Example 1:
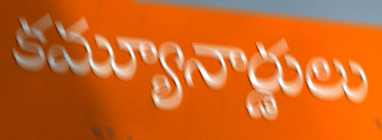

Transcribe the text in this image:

కమ్యూనార్డులు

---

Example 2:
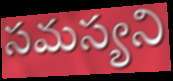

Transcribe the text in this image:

సమస్యని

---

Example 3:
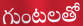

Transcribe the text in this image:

గుంటలతో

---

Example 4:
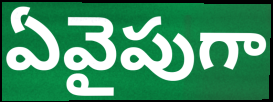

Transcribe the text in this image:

ఏవైపుగా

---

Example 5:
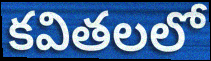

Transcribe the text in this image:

కవితలలో